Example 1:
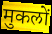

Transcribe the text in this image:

मुकलों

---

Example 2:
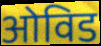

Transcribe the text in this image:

ओविड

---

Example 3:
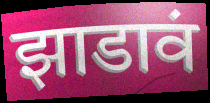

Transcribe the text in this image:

झाडावं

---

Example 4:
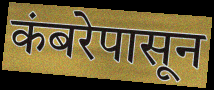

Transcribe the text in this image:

कंबरेपासून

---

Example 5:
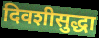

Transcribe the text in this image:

दिवशीसुद्धा